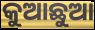
କୁଆଛୁଆ